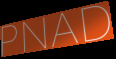
PNAD